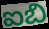
ఐబి